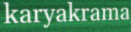
karyakrama